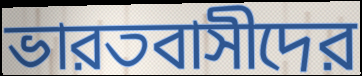
ভারতবাসীদের